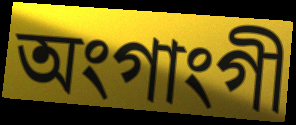
অংগাংগী